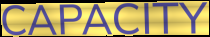
CAPACITY